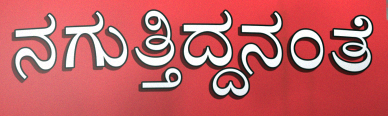
ನಗುತ್ತಿದ್ದನಂತೆ